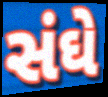
સંઘે